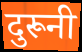
दुरूनी